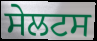
ਸੇਲਟਸ